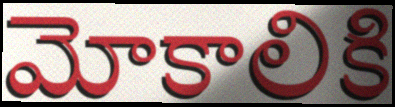
మోకాలికి